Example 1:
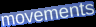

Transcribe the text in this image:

movements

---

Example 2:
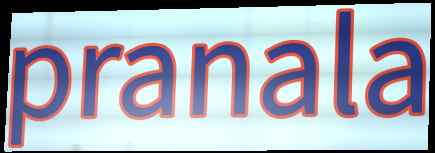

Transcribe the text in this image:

pranala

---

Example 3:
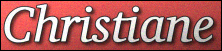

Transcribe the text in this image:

Christiane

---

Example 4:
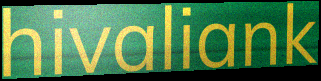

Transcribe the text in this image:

hivaliank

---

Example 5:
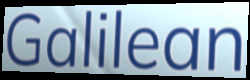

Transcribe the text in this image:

Galilean